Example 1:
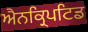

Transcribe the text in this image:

ਐਨਕ੍ਰਿਪਟਿਡ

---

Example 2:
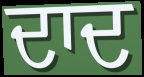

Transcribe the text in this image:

ਦਾਦ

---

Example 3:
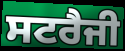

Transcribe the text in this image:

ਸਟਰੈਜੀ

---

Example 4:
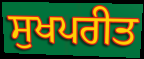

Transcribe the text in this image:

ਸੁਖਪਰੀਤ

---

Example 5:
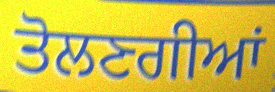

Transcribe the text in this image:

ਤੋਲਣਗੀਆਂ